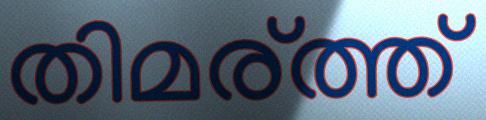
തിമര്ത്ത്